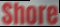
Shore